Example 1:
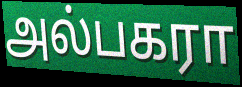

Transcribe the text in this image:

அல்பகரா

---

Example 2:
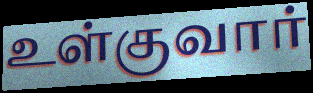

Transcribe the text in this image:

உள்குவார்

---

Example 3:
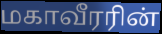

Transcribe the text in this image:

மகாவீரரின்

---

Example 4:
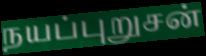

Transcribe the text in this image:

நயப்புறுசன்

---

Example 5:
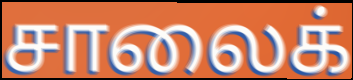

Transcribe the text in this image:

சாலைக்